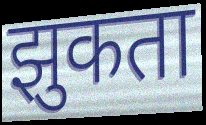
झुकता